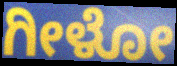
ಗೀಳೋ